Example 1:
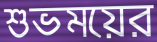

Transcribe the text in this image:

শুভময়ের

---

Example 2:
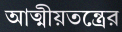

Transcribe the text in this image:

আত্মীয়তন্ত্রের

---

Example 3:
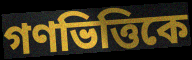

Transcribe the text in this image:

গণভিত্তিকে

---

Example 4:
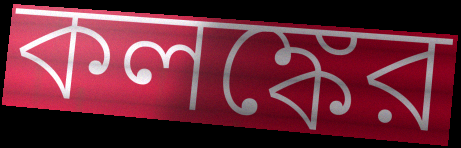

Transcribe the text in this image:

কলঙ্কের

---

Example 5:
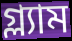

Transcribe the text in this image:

গ্ল্যাম